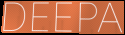
DEEPA